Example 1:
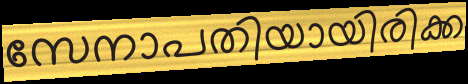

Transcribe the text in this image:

സേനാപതിയായിരിക്ക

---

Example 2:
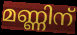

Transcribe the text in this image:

മണ്ണിന്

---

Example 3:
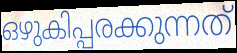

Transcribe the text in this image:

ഒഴുകിപ്പരക്കുന്നത്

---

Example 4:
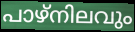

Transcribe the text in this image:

പാഴ്നിലവും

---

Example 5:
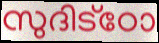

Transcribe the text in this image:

സുദിട്ഠോ